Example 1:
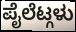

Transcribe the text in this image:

ಪೈಲೆಟ್ಗಳು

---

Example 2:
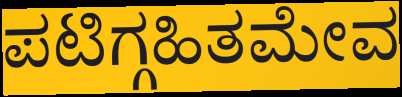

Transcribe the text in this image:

ಪಟಿಗ್ಗಹಿತಮೇವ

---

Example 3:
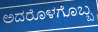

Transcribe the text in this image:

ಅದರೊಳಗೊಬ್ಬ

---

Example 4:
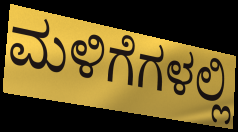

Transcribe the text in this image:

ಮಳಿಗೆಗಳಲ್ಲಿ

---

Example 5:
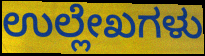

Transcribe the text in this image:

ಉಲ್ಲೇಖಗಳು